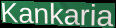
Kankaria